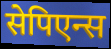
सेपिएन्स